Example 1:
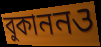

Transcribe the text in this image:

বুকাননও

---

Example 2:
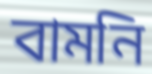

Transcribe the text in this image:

বামনি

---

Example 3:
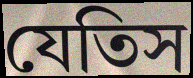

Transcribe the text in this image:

যেতিস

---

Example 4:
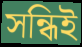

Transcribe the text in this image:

সন্ধিই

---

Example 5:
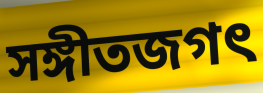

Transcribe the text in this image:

সঙ্গীতজগৎ